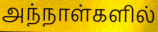
அந்நாள்களில்